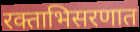
रक्ताभिसरणात